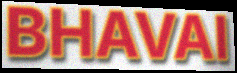
BHAVAI